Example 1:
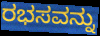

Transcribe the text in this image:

ರಭಸವನ್ನು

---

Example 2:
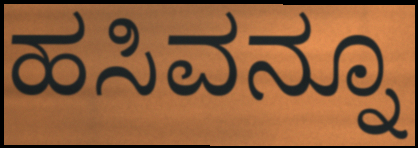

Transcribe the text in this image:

ಹಸಿವನ್ನೂ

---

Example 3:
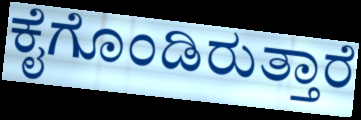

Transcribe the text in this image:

ಕೈಗೊಂಡಿರುತ್ತಾರೆ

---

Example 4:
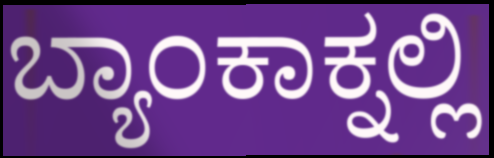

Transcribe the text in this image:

ಬ್ಯಾಂಕಾಕ್ನಲ್ಲಿ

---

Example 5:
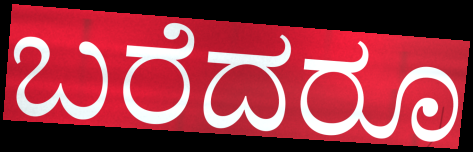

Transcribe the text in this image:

ಬರೆದರೂ